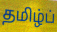
தமிழ்ப்